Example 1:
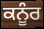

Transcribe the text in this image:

ਕਨੂੰਰ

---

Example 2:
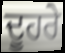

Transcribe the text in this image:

ਦੂਹਰੇ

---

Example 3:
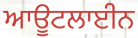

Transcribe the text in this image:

ਆਊਟਲਾਈਨ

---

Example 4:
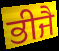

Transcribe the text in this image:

ਭੀਜੈ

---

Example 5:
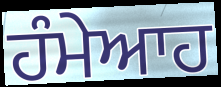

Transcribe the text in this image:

ਹੰਮੇਆਹ